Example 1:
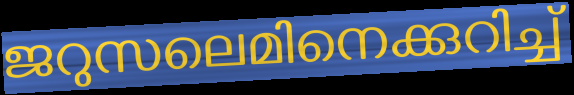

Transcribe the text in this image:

ജറുസലെമിനെക്കുറിച്ച്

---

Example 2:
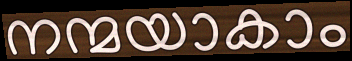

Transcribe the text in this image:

നന്മയാകാം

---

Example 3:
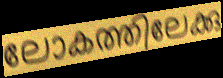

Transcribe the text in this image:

ലോകത്തിലേക്കു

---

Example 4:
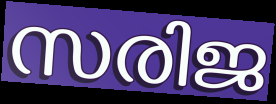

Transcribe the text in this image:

സരിജ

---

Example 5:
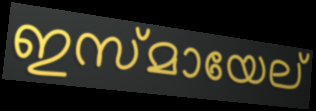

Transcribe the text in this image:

ഇസ്മായേല്